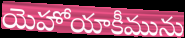
యెహోయాకీమును